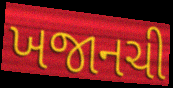
ખજાનચી